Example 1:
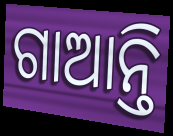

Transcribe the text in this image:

ଗାଆନ୍ତି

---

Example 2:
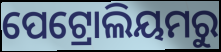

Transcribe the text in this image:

ପେଟ୍ରୋଲିୟମରୁ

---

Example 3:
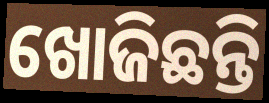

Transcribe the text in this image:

ଖୋଜିଛନ୍ତି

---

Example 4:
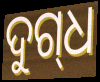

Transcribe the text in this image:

ଦୁଗ୍‌ଧ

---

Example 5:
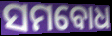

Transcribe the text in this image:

ସମବୋଧ